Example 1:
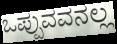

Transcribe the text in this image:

ಒಪ್ಪುವವನಲ್ಲ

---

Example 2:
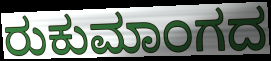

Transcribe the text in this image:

ರುಕುಮಾಂಗದ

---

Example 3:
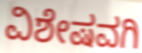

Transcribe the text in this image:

ವಿಶೇಷವಗಿ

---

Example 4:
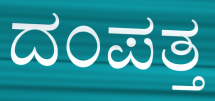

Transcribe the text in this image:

ದಂಪತ್ತ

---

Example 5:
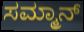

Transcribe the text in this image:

ಸಮ್ಮಾನ್